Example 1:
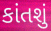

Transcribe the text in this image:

કાંતશું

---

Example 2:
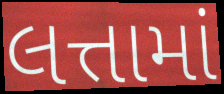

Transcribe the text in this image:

લત્તામાં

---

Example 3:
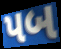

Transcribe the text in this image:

પબ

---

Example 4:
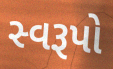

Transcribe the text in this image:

સ્વરૂપો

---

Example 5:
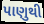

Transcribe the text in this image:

પાણુથી